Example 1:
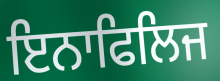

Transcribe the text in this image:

ਇਨਾਫਿਲਿਜ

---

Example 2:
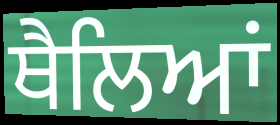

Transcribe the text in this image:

ਥੈਲਿਆਂ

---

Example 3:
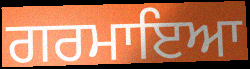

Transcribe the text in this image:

ਗਰਮਾਇਆ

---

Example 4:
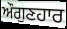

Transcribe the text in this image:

ਔਗੁਣਹਾਰ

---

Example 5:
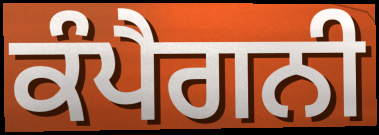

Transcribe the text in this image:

ਕੰਪੈਗਨੀ